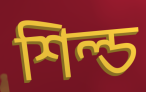
শিল্ড